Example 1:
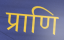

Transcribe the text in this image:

प्राणि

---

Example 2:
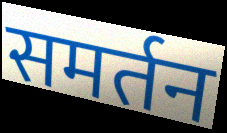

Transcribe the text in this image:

समर्तन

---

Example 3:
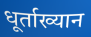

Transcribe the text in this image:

धूर्ताख्यान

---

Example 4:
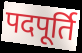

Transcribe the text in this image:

पदपूर्ति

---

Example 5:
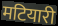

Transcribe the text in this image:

मटियारी